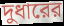
দুধারের